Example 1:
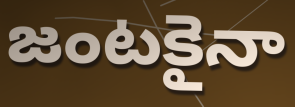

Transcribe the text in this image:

జంటకైనా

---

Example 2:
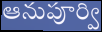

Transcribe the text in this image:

ఆనుపూర్వి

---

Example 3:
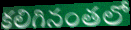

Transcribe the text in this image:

కలిగినంతలో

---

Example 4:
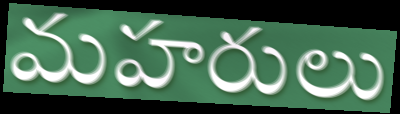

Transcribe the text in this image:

మహరులు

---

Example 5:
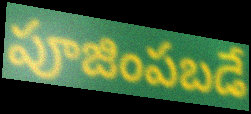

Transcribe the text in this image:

పూజింపబడే